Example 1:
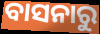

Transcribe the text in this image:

ବାସନାରୁ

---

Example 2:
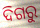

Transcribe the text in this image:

ଦିଗରୁ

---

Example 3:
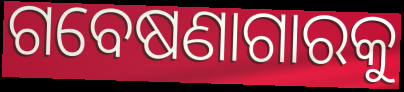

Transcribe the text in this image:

ଗବେଷଣାଗାରକୁ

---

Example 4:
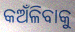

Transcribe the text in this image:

କଅଁଳିବାକୁ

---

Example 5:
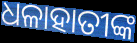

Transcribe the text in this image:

ଧଳାହାତୀଙ୍କ